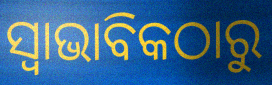
ସ୍ୱାଭାବିକଠାରୁ